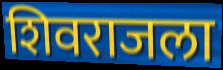
शिवराजला